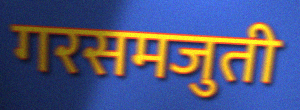
गरसमजुती